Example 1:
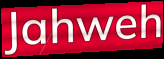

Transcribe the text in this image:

Jahweh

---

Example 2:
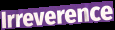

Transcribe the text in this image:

Irreverence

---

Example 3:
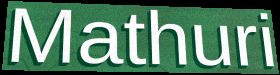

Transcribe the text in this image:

Mathuri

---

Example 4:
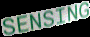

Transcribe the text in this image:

SENSING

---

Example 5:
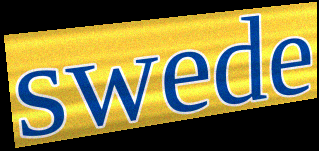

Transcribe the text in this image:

swede